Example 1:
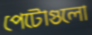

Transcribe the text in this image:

পেটোগুলো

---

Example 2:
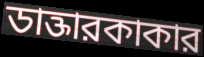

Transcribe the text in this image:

ডাক্তারকাকার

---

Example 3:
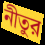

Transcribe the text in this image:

নীতুর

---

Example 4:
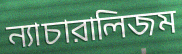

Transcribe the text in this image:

ন্যাচারালিজম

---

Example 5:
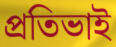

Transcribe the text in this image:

প্রতিভাই